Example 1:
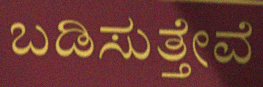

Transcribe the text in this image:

ಬಡಿಸುತ್ತೇವೆ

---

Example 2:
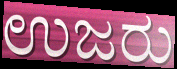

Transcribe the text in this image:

ಉಜರು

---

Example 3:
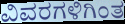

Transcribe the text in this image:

ವಿವರಗಳಿಗಿಂತ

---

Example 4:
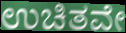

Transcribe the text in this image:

ಉಚಿತವೇ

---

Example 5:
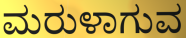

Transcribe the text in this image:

ಮರುಳಾಗುವ